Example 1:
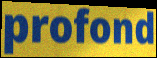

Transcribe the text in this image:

profond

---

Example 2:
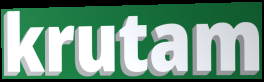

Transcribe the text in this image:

krutam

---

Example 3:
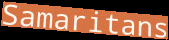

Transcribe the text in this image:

Samaritans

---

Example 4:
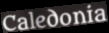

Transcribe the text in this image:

Caledonia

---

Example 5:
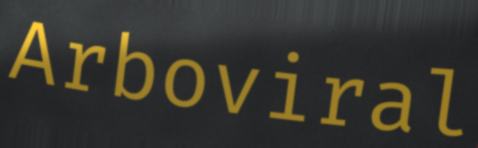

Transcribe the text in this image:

Arboviral